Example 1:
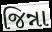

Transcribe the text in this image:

જિન્ના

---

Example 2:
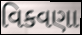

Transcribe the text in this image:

વિકવણા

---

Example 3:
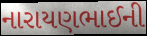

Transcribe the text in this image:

નારાયણભાઈની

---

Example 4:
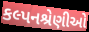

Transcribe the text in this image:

કલ્પનશ્રેણીઓ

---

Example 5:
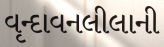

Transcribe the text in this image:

વૃન્દાવનલીલાની